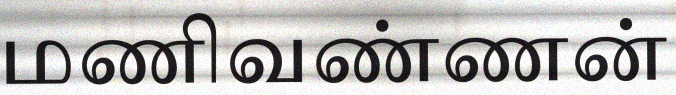
மணிவண்ணன்